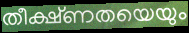
തീക്ഷ്ണതയെയും